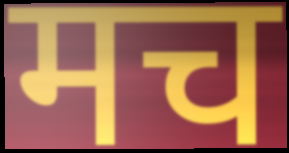
मच